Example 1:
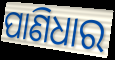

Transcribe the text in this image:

ପାଣିଧାର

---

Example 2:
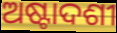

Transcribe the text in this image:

ଅଷ୍ଟାଦଶୀ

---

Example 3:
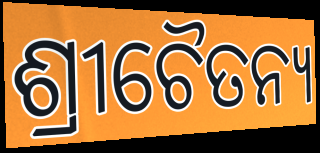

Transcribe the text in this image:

ଶ୍ରୀଚୈତନ୍ୟ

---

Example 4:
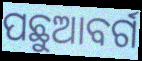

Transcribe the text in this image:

ପଛୁଆବର୍ଗ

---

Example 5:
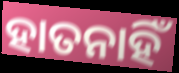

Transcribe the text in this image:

ହାତନାହିଁ